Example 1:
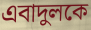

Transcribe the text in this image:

এবাদুলকে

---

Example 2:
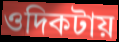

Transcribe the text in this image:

ওদিকটায়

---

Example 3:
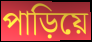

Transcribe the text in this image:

পাড়িয়ে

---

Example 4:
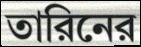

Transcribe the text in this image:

তারিনের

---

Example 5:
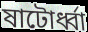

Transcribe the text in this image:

ষাটোর্ধ্বা